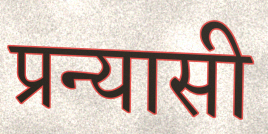
प्रन्यासी